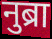
नुब्रा